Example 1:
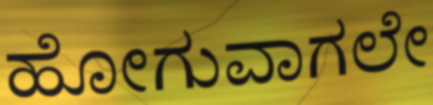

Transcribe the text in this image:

ಹೋಗುವಾಗಲೇ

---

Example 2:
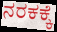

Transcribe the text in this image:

ನರಕಕ್ಕೆ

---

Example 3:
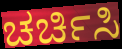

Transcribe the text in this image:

ಚರ್ಚಿಸಿ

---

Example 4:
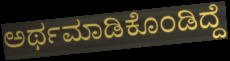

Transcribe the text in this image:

ಅರ್ಥಮಾಡಿಕೊಂಡಿದ್ದೆ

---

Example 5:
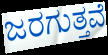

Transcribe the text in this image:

ಜರಗುತ್ತವೆ